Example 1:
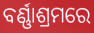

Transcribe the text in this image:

ବର୍ଣ୍ଣାଶ୍ରମରେ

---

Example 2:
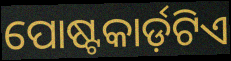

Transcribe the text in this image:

ପୋଷ୍ଟକାର୍ଡ଼ଟିଏ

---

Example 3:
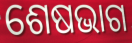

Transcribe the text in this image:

ଶେଷଭାଗ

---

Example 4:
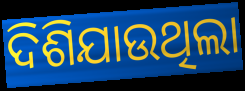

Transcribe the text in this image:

ଦିଶିଯାଉଥିଲା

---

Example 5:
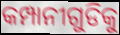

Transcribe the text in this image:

କମ୍ପାନୀଗୁଡିକୁ